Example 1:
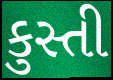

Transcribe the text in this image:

કુસ્તી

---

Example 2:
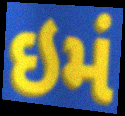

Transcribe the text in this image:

ઇમં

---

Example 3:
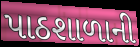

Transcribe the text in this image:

પાઠશાળાની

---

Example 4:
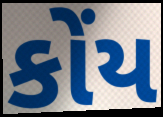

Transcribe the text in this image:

કોંય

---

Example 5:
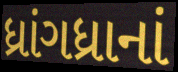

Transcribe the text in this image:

ધ્રાંગધ્રાનાં